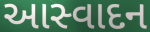
આસ્વાદન